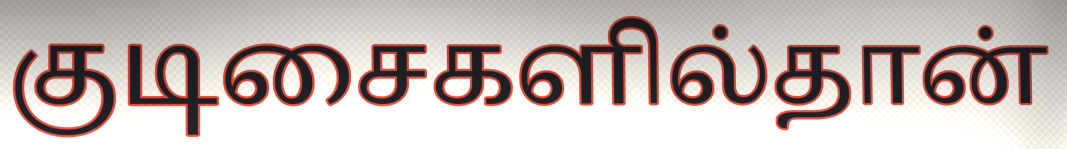
குடிசைகளில்தான்